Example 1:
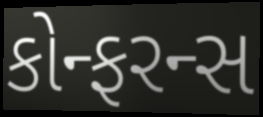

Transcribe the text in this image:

કોન્ફરન્સ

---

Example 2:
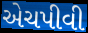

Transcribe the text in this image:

એચપીવી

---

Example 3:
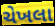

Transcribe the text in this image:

ચેખલા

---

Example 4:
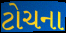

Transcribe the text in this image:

ટોચના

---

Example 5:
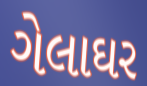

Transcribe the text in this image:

ગેલાઘર